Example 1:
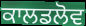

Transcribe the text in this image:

ਕਾਲਡਲੋਵ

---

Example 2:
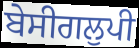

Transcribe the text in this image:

ਬੇਸੀਗਲੁਪੀ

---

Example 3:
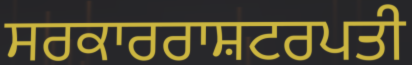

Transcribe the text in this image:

ਸਰਕਾਰਰਾਸ਼ਟਰਪਤੀ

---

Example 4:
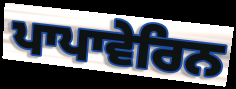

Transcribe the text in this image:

ਪਾਪਾਵੇਰਿਨ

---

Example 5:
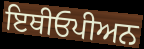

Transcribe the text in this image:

ਇਥੀਓਪੀਅਨ